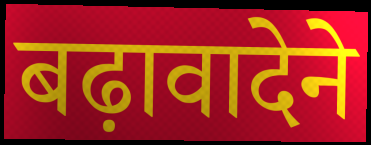
बढ़ावादेने